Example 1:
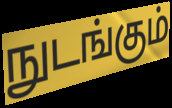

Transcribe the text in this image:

நுடங்கும்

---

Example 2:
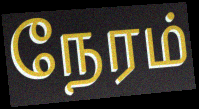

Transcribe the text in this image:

நேரம்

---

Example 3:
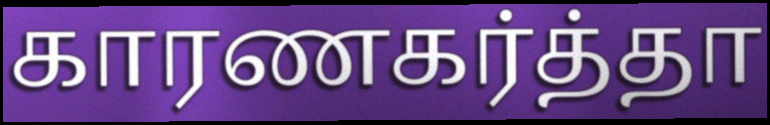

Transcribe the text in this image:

காரணகர்த்தா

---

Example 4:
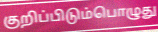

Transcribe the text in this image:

குறிப்பிடும்பொழுது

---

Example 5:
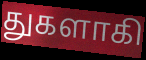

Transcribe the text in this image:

துகளாகி